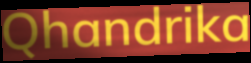
Qhandrika